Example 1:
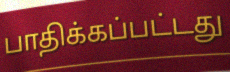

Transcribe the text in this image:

பாதிக்கப்பட்டது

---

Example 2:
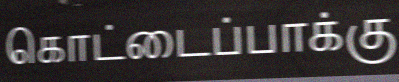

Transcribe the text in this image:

கொட்டைப்பாக்கு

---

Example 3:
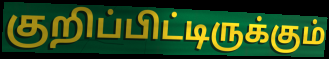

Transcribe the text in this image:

குறிப்பிட்டிருக்கும்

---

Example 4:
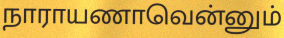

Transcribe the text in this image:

நாராயணாவென்னும்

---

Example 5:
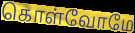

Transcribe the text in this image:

கொள்வோமே